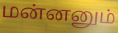
மன்னனும்